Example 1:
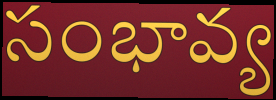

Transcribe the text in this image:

సంభావ్య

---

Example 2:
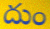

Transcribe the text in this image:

దుం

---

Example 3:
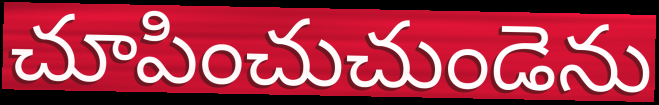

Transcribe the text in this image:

చూపించుచుండెను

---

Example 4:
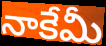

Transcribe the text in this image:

నాకేమీ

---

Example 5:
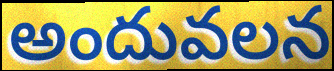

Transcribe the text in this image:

అందువలన